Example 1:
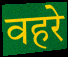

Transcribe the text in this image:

वहरे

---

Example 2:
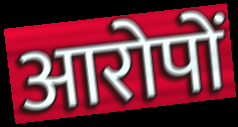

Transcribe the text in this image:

आरोपों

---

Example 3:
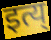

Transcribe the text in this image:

इत्य्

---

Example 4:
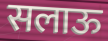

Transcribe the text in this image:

सलाऊ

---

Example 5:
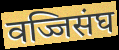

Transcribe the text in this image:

वज्जिसंघ